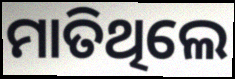
ମାତିଥିଲେ